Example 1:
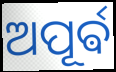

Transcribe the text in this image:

ଅପୂର୍ଵ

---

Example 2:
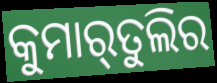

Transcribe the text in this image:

କୁମାର୍‌ତୁଲିର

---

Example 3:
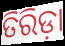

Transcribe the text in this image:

ତିରିଡ଼ା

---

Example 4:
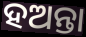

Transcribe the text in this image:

ହଅନ୍ତା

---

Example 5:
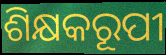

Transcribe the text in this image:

ଶିକ୍ଷକରୂପୀ